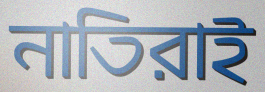
নাতিরাই